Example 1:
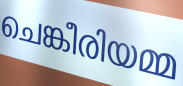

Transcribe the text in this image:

ചെങ്കീരിയമ്മ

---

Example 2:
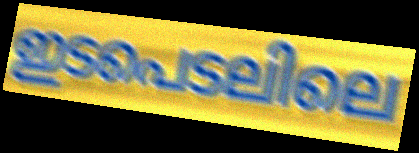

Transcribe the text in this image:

ഇടപെടലിലെ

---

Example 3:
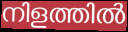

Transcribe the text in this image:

നിളത്തിൽ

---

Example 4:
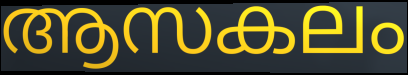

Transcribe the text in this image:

ആസകലം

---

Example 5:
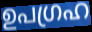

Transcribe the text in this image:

ഉപഗ്രഹ